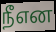
நீஎன